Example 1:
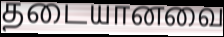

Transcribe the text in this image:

தடையானவை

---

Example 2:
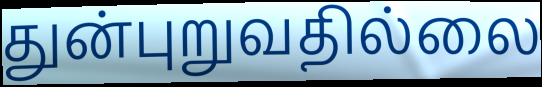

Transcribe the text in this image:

துன்புறுவதில்லை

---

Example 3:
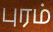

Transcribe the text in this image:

புரம்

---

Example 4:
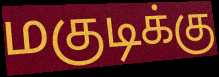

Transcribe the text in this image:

மகுடிக்கு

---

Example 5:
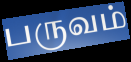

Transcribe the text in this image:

பருவம்